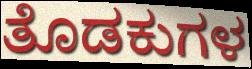
ತೊಡಕುಗಳ